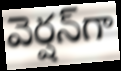
వెర్షన్‌గా